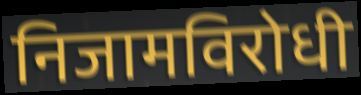
निजामविरोधी